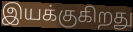
இயக்குகிறது